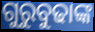
ଗୁରୁବୁଢାଙ୍କ